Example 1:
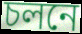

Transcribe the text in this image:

চলনে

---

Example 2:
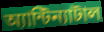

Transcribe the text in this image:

অ্যান্টিন্যাটাল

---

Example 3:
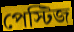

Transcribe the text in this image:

পেস্টিজ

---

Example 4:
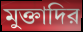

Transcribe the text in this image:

মুক্তাদির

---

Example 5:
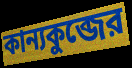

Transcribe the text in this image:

কান্যকুব্জের